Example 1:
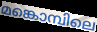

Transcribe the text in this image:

മങ്കൊമ്പിലെ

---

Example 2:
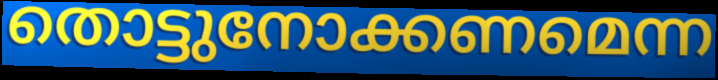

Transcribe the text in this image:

തൊട്ടുനോക്കണമെന്ന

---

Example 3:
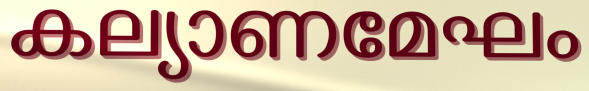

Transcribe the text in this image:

കല്യാണമേഘം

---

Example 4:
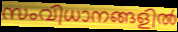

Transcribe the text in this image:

സംവിധാനങ്ങളിൽ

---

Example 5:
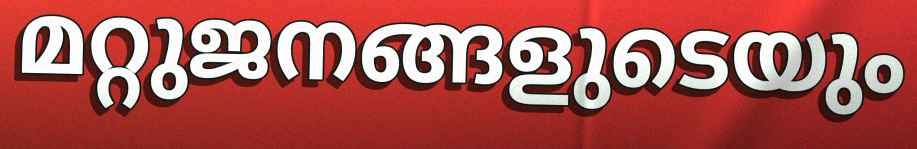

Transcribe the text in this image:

മറ്റുജനങ്ങളുടെയും